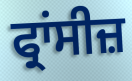
ਫ੍ਰਾਂਸੀਜ਼